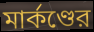
মার্কণ্ডের